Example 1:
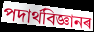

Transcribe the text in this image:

পদাৰ্থবিজ্ঞানৰ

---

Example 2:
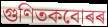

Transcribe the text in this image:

গুণিতকবোৰৰ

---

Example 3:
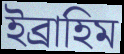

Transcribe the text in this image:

ইব্ৰাহিম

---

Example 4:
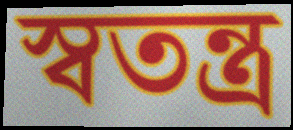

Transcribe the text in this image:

স্বতন্ত্ৰ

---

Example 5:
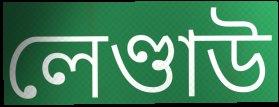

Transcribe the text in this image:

লেণ্ডাউ